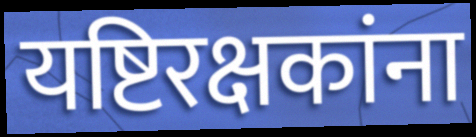
यष्टिरक्षकांना